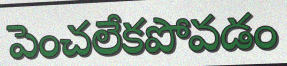
పెంచలేకపోవడం